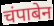
चंपाबेन